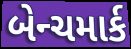
બેન્ચમાર્ક